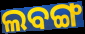
ଲବଙ୍ଗ